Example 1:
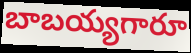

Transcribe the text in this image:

బాబయ్యగారూ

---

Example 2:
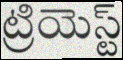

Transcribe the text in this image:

ట్రియెస్ట్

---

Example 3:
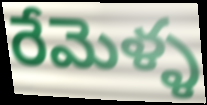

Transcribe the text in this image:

రేమెళ్ళ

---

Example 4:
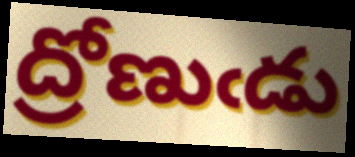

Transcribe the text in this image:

ద్రోణుఁడు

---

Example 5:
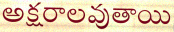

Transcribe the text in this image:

అక్షరాలవుతాయి